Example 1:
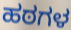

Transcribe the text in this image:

ಹಠಗಳ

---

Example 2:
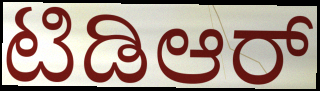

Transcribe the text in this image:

ಟಿಡಿಆರ್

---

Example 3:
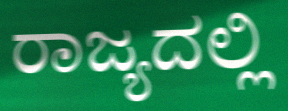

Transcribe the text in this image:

ರಾಜ್ಯದಲ್ಲಿ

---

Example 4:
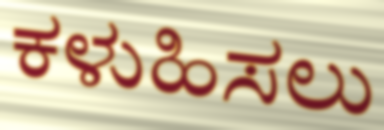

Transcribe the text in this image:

ಕಳುಹಿಸಲು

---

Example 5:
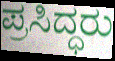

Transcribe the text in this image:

ಪ್ರಸಿದ್ಧರು